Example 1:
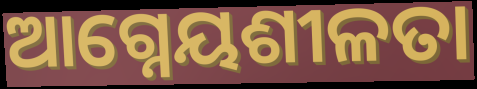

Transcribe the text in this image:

ଆଗ୍ନେୟଶୀଳତା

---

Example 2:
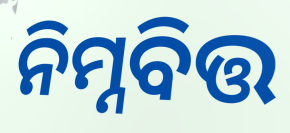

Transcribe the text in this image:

ନିମ୍ନବିତ୍ତ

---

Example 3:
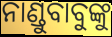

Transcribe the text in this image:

ନାଣ୍ଡୁବାବୁଙ୍କୁ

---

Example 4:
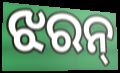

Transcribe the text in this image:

ଝରନ୍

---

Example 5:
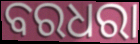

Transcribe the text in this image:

ବରଧରା